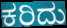
ಕರಿದು